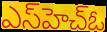
ఎస్‌హెచ్ఓ